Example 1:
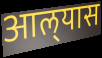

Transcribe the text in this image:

आल्यास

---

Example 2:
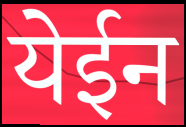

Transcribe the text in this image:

येईन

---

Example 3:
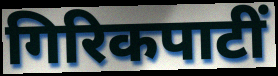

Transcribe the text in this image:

गिरिकपाटीं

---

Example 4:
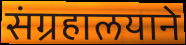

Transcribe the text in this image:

संग्रहालयाने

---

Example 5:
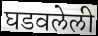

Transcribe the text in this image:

घडवलेली